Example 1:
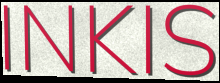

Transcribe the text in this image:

INKIS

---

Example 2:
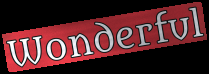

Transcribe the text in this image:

Wonderful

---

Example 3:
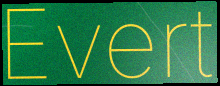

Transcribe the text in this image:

Evert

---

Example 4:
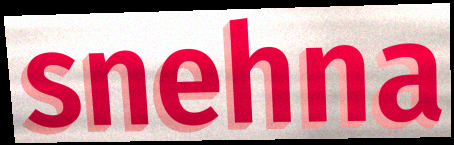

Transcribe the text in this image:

snehna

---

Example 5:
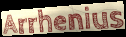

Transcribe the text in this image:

Arrhenius